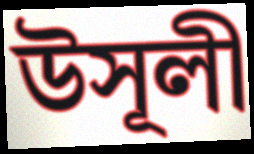
উসূলী